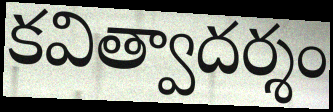
కవిత్వాదర్శం